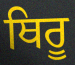
ਥਿਰੂ